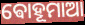
ଵୋହୂମାଆ